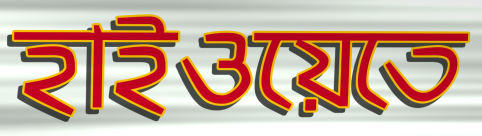
হাইওয়েতে